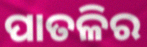
ପାତଳିର